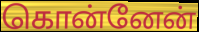
கொன்னேன்